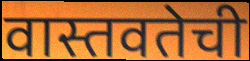
वास्तवतेची